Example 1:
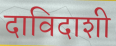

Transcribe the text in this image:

दाविदाशी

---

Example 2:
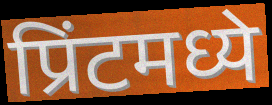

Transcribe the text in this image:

प्रिंटमध्ये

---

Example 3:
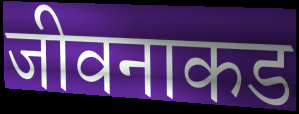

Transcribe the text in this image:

जीवनाकड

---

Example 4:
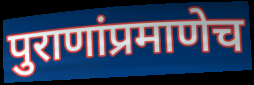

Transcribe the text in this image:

पुराणांप्रमाणेच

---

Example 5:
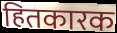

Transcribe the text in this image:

हितकारक